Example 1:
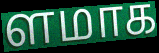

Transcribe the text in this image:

ளமாக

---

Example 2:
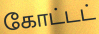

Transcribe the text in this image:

கோட்டட்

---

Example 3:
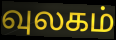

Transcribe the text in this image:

வுலகம்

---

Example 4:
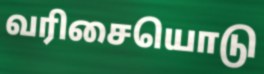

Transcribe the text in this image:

வரிசையொடு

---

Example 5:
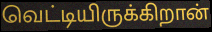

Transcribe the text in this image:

வெட்டியிருக்கிறான்